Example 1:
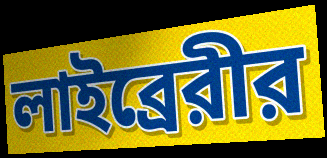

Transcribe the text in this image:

লাইব্রেরীর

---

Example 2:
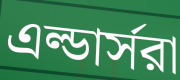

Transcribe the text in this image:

এল্ডার্সরা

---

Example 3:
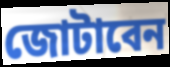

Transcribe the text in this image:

জোটাবেন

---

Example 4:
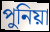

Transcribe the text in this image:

পুনিয়া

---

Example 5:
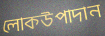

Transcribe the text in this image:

লোকউপাদান